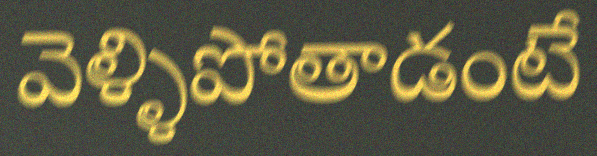
వెళ్ళిపోతాడంటే